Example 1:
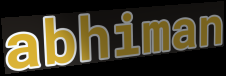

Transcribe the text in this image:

abhiman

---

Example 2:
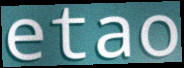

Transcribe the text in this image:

etao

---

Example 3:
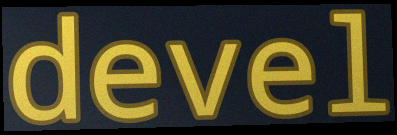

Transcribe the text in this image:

devel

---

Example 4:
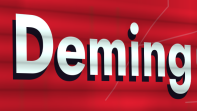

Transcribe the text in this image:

Deming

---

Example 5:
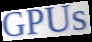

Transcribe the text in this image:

GPUs